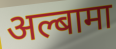
अल्बामा